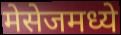
मेसेजमध्ये